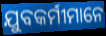
ଯୁବକର୍ମୀମାନେ